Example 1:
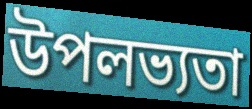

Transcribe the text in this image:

উপলভ্যতা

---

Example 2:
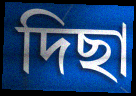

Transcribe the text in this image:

দিছা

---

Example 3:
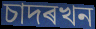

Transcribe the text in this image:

চাদৰখন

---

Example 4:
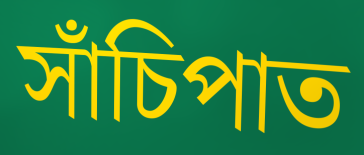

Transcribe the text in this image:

সাঁচিপাত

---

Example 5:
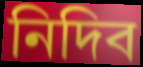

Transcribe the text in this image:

নিদিব